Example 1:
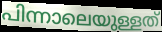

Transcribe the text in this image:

പിന്നാലെയുള്ളത്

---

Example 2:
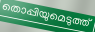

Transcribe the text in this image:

തൊപ്പിയുമെടുത്ത്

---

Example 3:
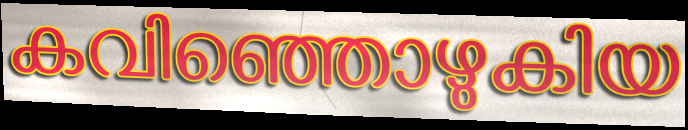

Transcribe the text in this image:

കവിഞ്ഞൊഴുകിയ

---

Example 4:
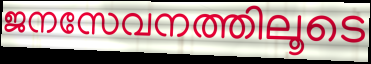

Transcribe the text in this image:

ജനസേവനത്തിലൂടെ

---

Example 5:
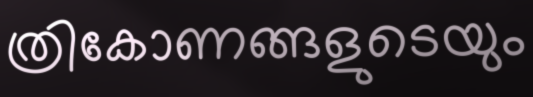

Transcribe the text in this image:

ത്രികോണങ്ങളുടെയും